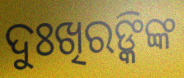
ଦୁଃଖିରଙ୍କିଙ୍କ